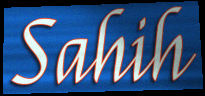
Sahih